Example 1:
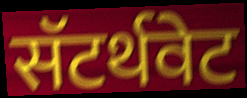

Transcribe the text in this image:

सॅटर्थवेट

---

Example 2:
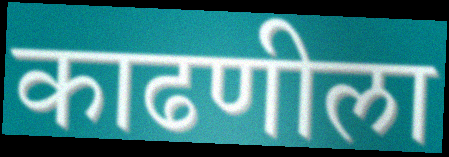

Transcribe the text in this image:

काढणीला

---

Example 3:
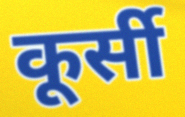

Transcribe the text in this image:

कूर्सी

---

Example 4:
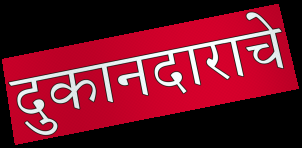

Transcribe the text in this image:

दुकानदाराचे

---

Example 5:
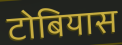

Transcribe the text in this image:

टोबियास